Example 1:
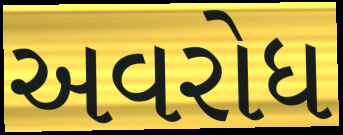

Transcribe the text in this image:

અવરોધ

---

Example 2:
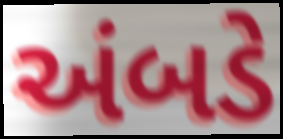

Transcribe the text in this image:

અંબડે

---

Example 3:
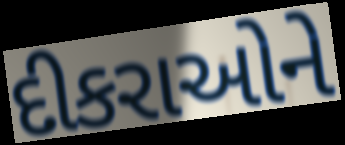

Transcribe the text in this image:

દીકરાઓને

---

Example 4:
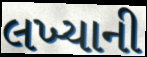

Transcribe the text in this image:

લખ્યાની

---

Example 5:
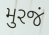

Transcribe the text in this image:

મુરજં